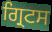
ਗ੍ਰਿਟਸ